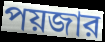
পয়জার